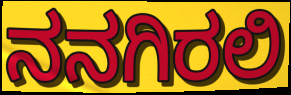
ನನಗಿರಲಿ